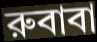
রুবাবা